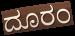
ದೂರಂ